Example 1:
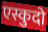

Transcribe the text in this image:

एस्कुदो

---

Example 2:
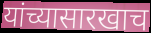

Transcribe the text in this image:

यांच्यासारखाच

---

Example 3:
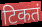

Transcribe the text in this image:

टिकतं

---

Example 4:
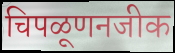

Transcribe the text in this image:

चिपळूणनजीक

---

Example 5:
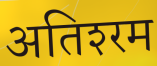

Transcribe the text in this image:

अतिश्रम